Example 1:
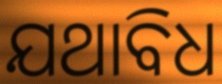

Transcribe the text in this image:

ଯଥାବିଧ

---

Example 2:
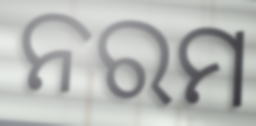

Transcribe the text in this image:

ନରମ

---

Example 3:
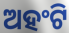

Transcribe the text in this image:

ଅହଂଟି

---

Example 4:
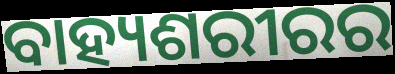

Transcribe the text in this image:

ବାହ୍ୟଶରୀରର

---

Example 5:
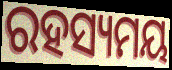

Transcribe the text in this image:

ରହସ୍ୟମୟ